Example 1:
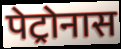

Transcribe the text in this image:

पेट्रोनास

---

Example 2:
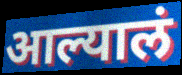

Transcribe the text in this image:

आल्यालं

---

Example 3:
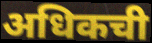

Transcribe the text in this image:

अधिकची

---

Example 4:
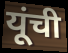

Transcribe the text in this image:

यूंची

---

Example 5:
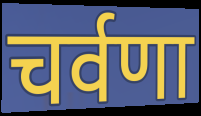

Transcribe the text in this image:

चर्वणा